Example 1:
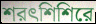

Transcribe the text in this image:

শরৎশিশিরে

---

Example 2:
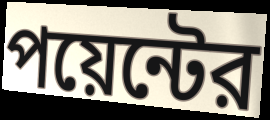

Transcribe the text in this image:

পয়েন্টের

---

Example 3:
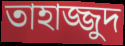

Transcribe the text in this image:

তাহাজ্জুদ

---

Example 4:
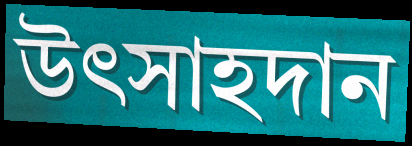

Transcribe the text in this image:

উৎসাহদান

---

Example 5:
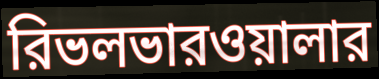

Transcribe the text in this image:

রিভলভারওয়ালার